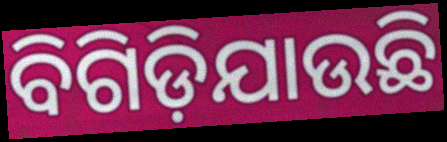
ବିଗିଡ଼ିଯାଉଛି